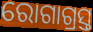
ରୋଗାଗ୍ରସ୍ତ